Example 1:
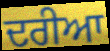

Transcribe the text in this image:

ਦਰੀਆ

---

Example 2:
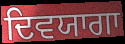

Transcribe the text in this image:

ਦਿਵਯਾਗਾ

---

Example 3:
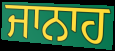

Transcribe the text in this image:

ਜਾਨਾਹ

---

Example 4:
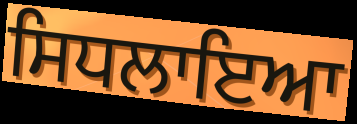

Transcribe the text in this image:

ਸਿਧਲਾਇਆ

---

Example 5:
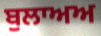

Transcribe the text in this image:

ਬੁਲਾਅਅ